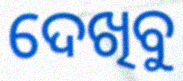
ଦେଖିବୁ